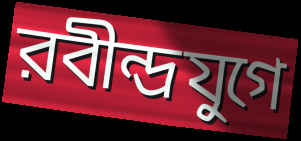
রবীন্দ্রযুগে